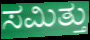
ಸಮಿತ್ತು